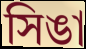
সিঙা